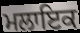
ਮਲਾਇਕ